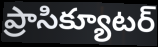
ప్రాసిక్యూటర్